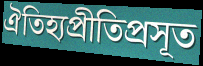
ঐতিহ্যপ্রীতিপ্রসূত